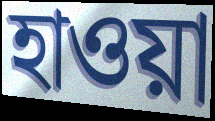
হাওয়া